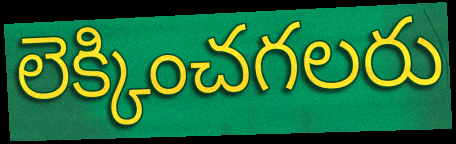
లెక్కించగలరు